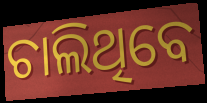
ଚାଲିଥିବେ